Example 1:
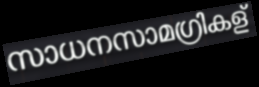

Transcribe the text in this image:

സാധനസാമഗ്രികള്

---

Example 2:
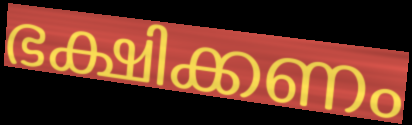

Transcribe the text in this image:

ഭക്ഷിക്കണം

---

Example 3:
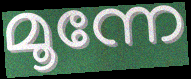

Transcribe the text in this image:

മൂന്നേ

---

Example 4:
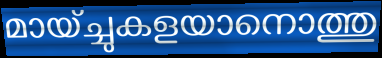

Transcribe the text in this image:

മായ്ച്ചുകളയാനൊത്തു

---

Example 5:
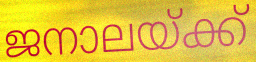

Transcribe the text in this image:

ജനാലയ്ക്ക്